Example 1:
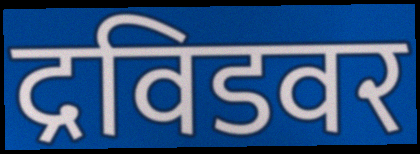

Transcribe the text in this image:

द्रविडवर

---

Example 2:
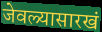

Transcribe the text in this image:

जेवल्यासारखं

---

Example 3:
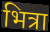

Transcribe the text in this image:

भित्रा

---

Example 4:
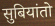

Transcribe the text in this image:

सुबियांतो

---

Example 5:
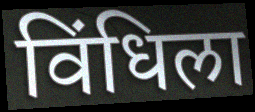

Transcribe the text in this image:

विंधिला